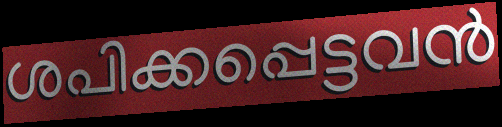
ശപിക്കപ്പെട്ടവൻ